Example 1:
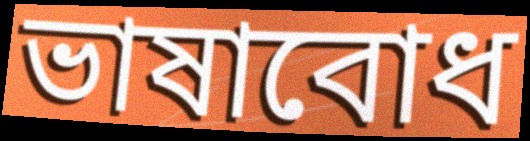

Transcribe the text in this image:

ভাষাবোধ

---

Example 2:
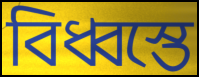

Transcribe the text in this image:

বিধ্বস্তে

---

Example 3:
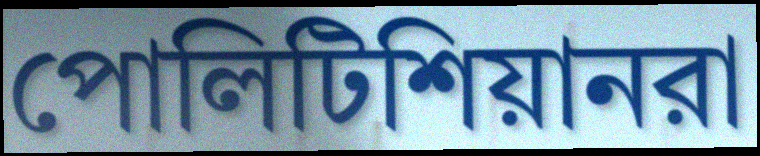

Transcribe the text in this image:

পোলিটিশিয়ানরা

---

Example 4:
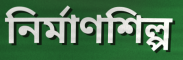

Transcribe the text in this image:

নির্মাণশিল্প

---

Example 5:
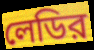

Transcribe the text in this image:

লেডির